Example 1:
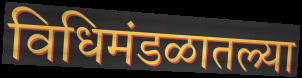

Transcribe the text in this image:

विधिमंडळातल्या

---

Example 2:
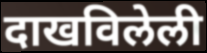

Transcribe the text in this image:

दाखविलेली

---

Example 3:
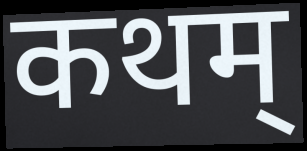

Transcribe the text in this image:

कथम्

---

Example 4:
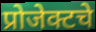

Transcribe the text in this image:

प्रोजेक्टचे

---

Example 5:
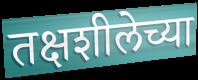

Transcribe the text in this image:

तक्षशीलेच्या